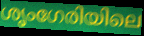
ശൃംഗേരിയിലെ